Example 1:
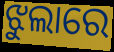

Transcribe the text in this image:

ଝୁଲାରେ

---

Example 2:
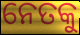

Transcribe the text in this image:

ନେତକୁ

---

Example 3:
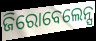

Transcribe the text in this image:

ଜିରୋବେଲେନ୍ସ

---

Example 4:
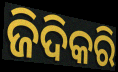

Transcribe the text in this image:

ଜିଦିକରି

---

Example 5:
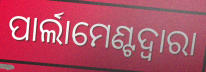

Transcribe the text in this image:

ପାର୍ଲାମେଣ୍ଟଦ୍ୱାରା